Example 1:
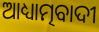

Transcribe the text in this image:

ଆଧ୍ୟାତ୍ମବାଦୀ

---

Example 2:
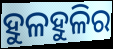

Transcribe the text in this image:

ହୁଳହୁଳିର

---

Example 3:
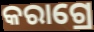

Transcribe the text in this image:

କରାଗ୍ରେ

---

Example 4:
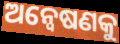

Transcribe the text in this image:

ଅନ୍ବେଷଣକୁ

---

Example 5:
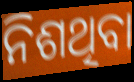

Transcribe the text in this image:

ନିଶଥିବା